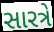
સારત્રે